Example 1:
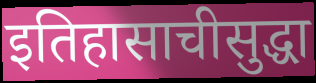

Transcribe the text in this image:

इतिहासाचीसुद्धा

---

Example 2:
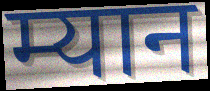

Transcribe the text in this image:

म्यान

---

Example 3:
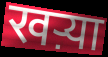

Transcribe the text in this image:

खऱ्‍या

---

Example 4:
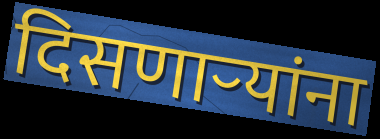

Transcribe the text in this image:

दिसणाऱ्यांना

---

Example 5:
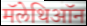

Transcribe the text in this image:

मॅलेथिऑन